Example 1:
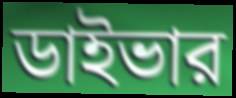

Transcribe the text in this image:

ডাইভার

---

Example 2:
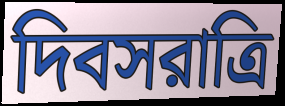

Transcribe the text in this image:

দিবসরাত্রি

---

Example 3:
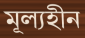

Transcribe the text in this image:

মূল্যহীন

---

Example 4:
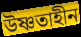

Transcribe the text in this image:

উষ্ণতাহীন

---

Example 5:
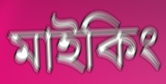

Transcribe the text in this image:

মাইকিং